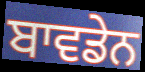
ਬਾਵਡੇਨ